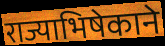
राज्याभिषेकाने